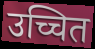
उच्चित